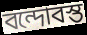
বন্দোবস্ত